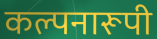
कल्पनारूपी